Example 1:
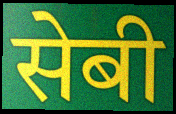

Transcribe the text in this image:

सेबी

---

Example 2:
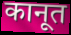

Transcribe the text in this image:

कानूत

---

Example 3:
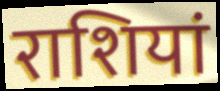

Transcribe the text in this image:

राशियां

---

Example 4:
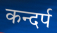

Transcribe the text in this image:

कन्दर्प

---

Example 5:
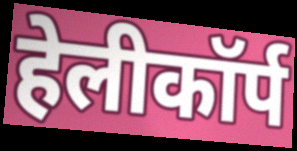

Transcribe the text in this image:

हेलीकॉर्प